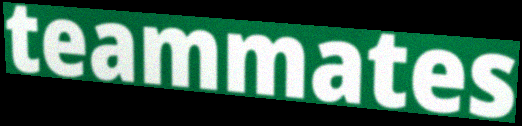
teammates